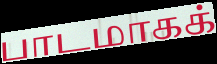
பாடமாகக்